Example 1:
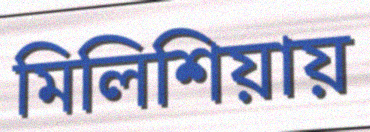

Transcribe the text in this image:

মিলিশিয়ায়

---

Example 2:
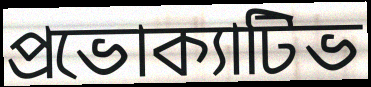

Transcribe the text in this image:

প্রভোক্যাটিভ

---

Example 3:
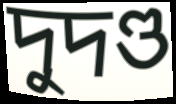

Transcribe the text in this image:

দুদণ্ড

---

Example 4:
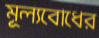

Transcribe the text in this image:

মূল্যবোধের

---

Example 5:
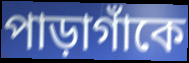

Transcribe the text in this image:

পাড়াগাঁকে